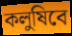
কলুষিবে